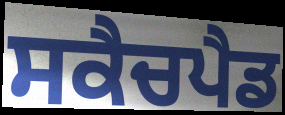
ਸਕੈਚਪੈਡ